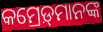
କମ୍ରେଡ଼୍‌ମାନଙ୍କ